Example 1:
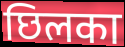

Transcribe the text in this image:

छिलका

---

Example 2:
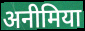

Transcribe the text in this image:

अनीमिया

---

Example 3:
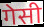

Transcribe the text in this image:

गेसी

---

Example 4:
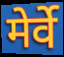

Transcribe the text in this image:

मेर्वे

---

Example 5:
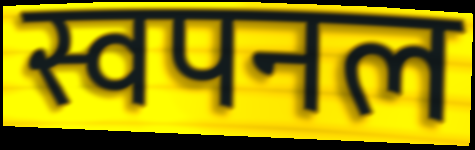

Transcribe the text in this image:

स्वपनल